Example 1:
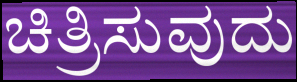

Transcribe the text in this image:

ಚಿತ್ರಿಸುವುದು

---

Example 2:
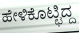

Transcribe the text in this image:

ಹೇಳಿಕೊಟ್ಟಿದ್ದ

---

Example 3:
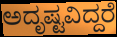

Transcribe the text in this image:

ಅದೃಷ್ಟವಿದ್ದರೆ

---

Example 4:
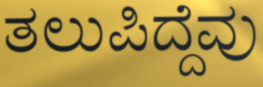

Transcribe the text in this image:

ತಲುಪಿದ್ದೆವು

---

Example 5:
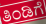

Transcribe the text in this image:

ತಿಂಡಿಗೆ